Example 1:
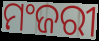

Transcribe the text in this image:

ମଂଜରୀ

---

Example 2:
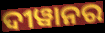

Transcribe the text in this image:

ଦୀୱାନର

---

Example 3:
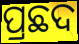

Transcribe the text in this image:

ପ୍ରଛଦ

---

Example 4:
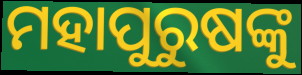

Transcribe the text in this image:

ମହାପୁରୁଷଙ୍କୁ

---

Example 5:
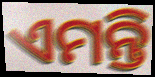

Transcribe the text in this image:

ଏମନ୍ତି